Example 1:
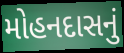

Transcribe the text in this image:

મોહનદાસનું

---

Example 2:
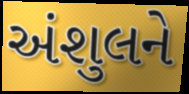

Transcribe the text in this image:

અંશુલને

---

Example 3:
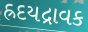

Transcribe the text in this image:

હ્રદયદ્રાવક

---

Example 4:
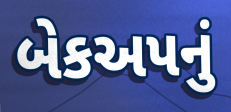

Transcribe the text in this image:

બેકઅપનું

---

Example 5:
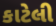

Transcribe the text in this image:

કાટેલી